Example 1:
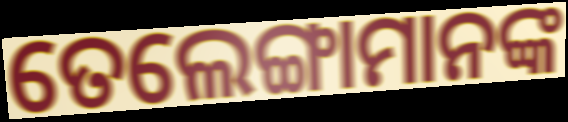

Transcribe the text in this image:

ତେଲେଙ୍ଗାମାନଙ୍କ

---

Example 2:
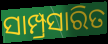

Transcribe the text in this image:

ସାମ୍ପ୍ରସାରିତ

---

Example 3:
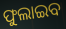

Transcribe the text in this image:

ଫୁଲାଇବ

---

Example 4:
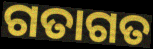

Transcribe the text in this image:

ଗତାଗତ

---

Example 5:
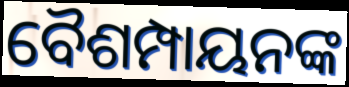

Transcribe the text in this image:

ବୈଶମ୍ପାୟନଙ୍କ